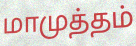
மாமுத்தம்